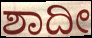
ಶಾದೀ